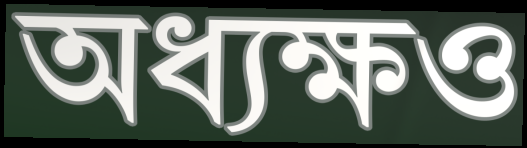
অধ্যক্ষও